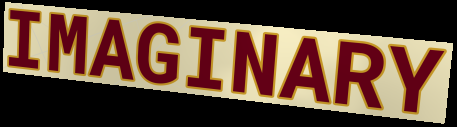
IMAGINARY